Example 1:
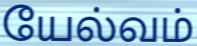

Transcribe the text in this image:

யேல்வம்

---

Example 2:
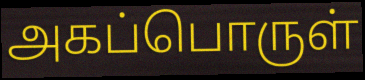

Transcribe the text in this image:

அகப்பொருள்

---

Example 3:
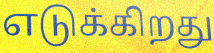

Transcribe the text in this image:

எடுக்கிறது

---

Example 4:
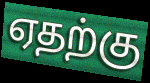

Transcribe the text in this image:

ஏதற்கு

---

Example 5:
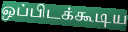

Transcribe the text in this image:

ஒப்பிடக்கூடிய